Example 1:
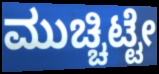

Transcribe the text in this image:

ಮುಚ್ಚಿಟ್ಟೇ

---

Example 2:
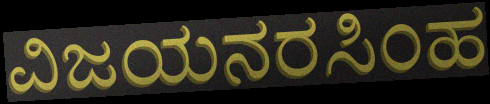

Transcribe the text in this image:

ವಿಜಯನರಸಿಂಹ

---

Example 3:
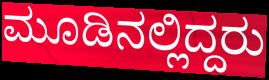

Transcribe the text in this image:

ಮೂಡಿನಲ್ಲಿದ್ದರು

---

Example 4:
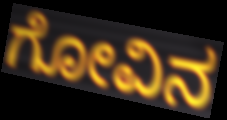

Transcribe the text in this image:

ಗೋವಿನ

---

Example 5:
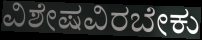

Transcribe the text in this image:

ವಿಶೇಷವಿರಬೇಕು